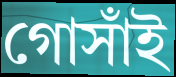
গোসাঁই